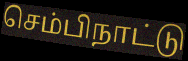
செம்பிநாட்டு